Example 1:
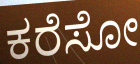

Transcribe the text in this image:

ಕರೆಸೋ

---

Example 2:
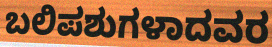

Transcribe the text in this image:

ಬಲಿಪಶುಗಳಾದವರ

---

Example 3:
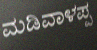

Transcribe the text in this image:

ಮಡಿವಾಳಪ್ಪ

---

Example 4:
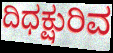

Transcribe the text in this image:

ದಿಧಕ್ಷುರಿವ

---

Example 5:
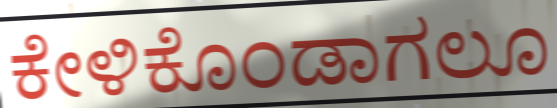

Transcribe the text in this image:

ಕೇಳಿಕೊಂಡಾಗಲೂ